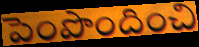
పెంపొందించి